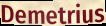
Demetrius